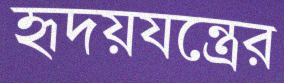
হৃদয়যন্ত্রের